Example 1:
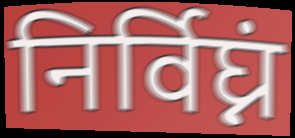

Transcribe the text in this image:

निर्विघ्नं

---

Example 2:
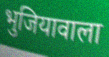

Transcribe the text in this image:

भुजियावाला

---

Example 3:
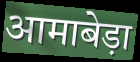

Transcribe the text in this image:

आमाबेड़ा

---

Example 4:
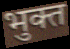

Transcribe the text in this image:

भुक्त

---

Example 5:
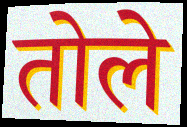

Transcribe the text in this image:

तोले